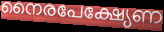
നൈരപേക്ഷ്യേണ